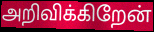
அறிவிக்கிறேன்